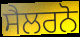
ਸੈਲਰਨੋ